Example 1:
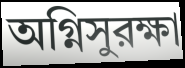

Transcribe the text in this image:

অগ্নিসুরক্ষা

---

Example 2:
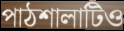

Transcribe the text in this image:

পাঠশালাটিও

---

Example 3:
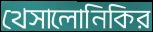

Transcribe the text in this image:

থেসালোনিকির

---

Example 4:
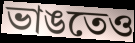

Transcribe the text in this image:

ভাঙতেও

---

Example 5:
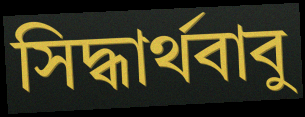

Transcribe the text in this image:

সিদ্ধার্থবাবু